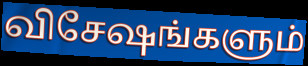
விசேஷங்களும்